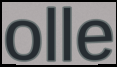
olle